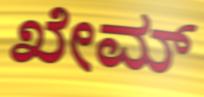
ಖೇಮ್